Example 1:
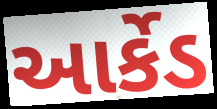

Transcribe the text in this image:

આર્કેડ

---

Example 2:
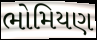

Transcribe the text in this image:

ભોમિયણ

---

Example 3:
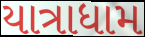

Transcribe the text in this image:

યાત્રાધામ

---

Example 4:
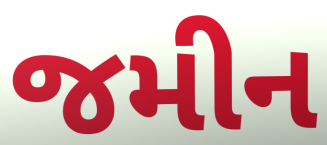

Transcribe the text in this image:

જમીન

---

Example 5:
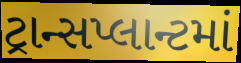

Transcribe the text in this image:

ટ્રાન્સપ્લાન્ટમાં